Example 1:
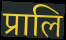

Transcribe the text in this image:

प्रालि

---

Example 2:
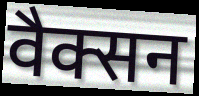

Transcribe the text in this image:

वैक्सन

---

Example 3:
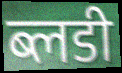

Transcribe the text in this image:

ब्लडी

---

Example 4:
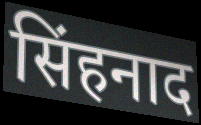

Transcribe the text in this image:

सिंहनाद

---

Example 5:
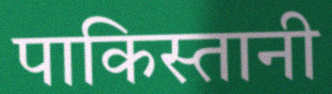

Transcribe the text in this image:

पाकिस्‍तानी